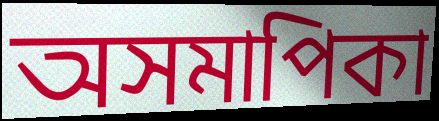
অসমাপিকা